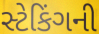
સ્ટેકિંગની